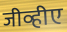
जीव्हीए